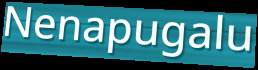
Nenapugalu